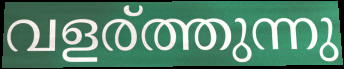
വളര്ത്തുന്നു